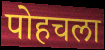
पोहचला